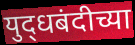
युद्धबंदीच्या